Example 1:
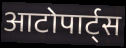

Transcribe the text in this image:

आटोपार्ट्स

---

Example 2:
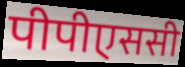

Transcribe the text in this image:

पीपीएससी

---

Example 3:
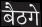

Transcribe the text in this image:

बैठगे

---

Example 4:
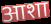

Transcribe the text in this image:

आशा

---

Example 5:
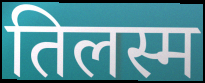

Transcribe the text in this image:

तिलस्म